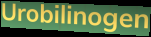
Urobilinogen